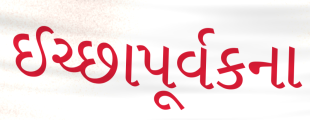
ઈચ્છાપૂર્વકના